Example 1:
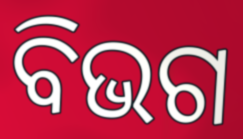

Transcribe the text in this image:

ବିଭଗ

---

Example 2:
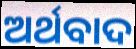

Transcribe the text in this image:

ଅର୍ଥବାଦ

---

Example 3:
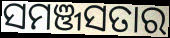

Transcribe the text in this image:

ସମଞ୍ଜସତାର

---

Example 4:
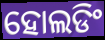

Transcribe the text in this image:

ହୋଲଡିଂ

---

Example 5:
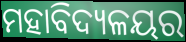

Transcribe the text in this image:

ମହାବିଦ୍ୟଳୟର